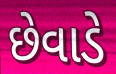
છેવાડે